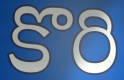
కొరి